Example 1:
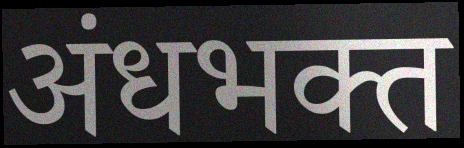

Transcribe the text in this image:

अंधभक्त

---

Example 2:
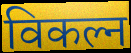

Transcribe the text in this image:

विकल्न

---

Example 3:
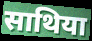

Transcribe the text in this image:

साथिया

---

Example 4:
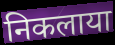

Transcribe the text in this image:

निकलाया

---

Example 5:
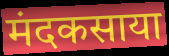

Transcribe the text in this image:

मंदकसाया